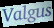
Valgus